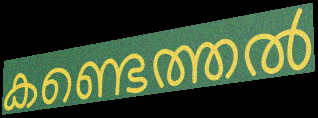
കണ്ടെത്തൽ